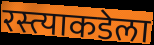
रस्त्याकडेला